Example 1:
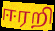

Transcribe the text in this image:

ஈரறி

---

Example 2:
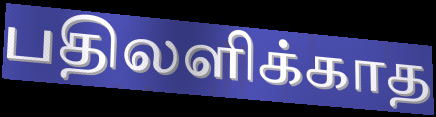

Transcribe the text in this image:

பதிலளிக்காத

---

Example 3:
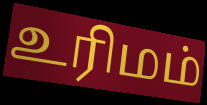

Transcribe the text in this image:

உரிமம்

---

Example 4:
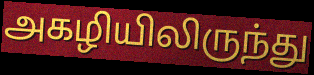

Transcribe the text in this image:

அகழியிலிருந்து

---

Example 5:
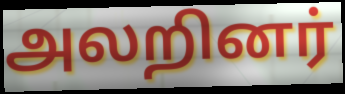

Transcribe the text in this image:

அலறினர்